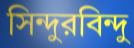
সিন্দুরবিন্দু